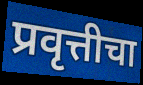
प्रवृत्तीचा